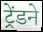
ट्रेंडने